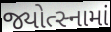
જ્યોત્સ્નામાં